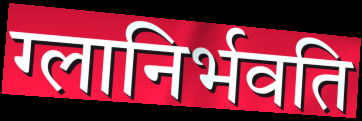
ग्लानिर्भवति